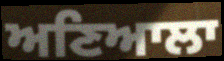
ਅਣਿਆਲਾ